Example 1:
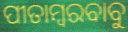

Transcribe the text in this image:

ପୀତାମ୍ବରବାବୁ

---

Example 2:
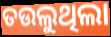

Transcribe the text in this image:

ତଉଲୁଥିଲା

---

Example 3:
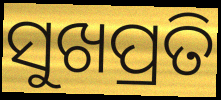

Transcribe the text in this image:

ସୁଖପ୍ରତି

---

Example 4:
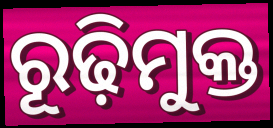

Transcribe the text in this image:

ରୂଢ଼ିମୁକ୍ତ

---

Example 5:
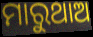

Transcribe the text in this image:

ମାରୁଥାଅ